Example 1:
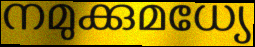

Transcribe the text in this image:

നമുക്കുമധ്യേ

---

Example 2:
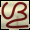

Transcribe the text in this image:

ഗൂ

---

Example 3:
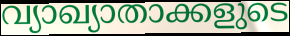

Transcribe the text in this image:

വ്യാഖ്യാതാക്കളുടെ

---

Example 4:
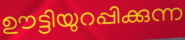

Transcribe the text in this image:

ഊട്ടിയുറപ്പിക്കുന്ന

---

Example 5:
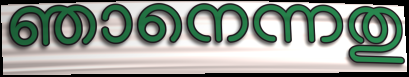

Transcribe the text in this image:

ഞാനെന്നതു